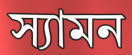
স্যামন